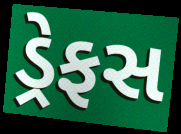
ડ્રેફસ